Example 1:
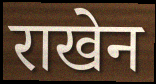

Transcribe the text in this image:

राखेन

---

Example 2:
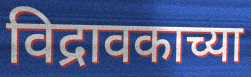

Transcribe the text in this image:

विद्रावकाच्या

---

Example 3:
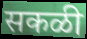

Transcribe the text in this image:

सकळी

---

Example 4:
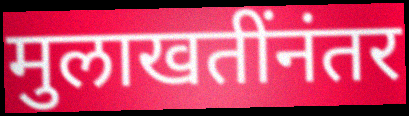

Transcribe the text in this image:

मुलाखतींनंतर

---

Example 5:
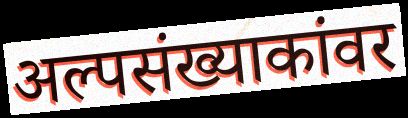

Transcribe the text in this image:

अल्पसंख्याकांवर